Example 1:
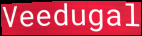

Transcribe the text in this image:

Veedugal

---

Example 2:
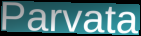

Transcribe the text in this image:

Parvata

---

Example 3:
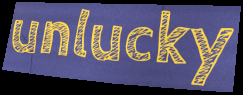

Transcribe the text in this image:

unlucky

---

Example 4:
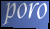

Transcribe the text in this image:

poro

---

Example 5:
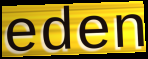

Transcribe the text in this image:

eden